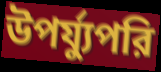
উপর্য্যুপরি